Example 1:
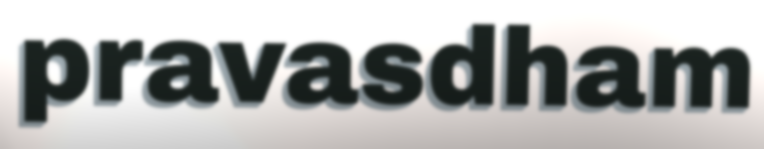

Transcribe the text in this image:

pravasdham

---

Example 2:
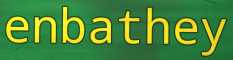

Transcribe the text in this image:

enbathey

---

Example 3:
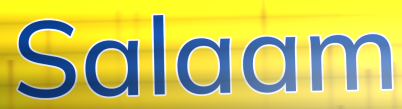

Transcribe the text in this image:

Salaam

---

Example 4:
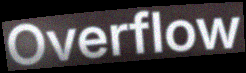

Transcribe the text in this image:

Overflow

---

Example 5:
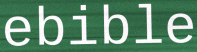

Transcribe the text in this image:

ebible